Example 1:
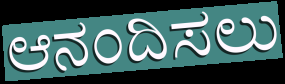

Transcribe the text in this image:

ಆನಂದಿಸಲು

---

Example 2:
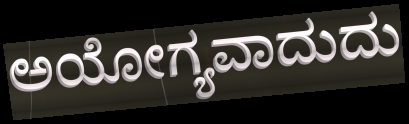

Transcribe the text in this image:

ಅಯೋಗ್ಯವಾದುದು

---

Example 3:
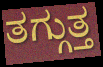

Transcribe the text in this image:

ತಗ್ಗುತ್ತ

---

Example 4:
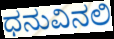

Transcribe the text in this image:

ಧನುವಿನಲಿ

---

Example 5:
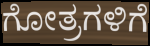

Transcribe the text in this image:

ಗೋತ್ರಗಳಿಗೆ